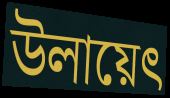
উলায়েৎ